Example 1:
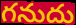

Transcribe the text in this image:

గనుదు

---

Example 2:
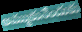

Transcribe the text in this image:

అమ్ముకునేందుకు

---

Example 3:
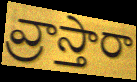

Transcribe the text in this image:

వ్రాస్తారా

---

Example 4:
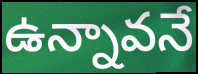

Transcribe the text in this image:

ఉన్నావనే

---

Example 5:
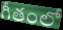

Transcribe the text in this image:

గీతంలో